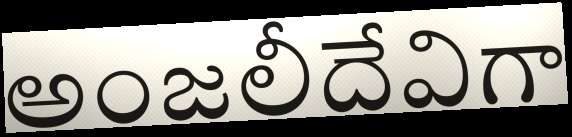
అంజలీదేవిగా